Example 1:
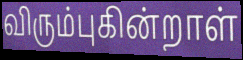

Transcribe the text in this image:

விரும்புகின்றாள்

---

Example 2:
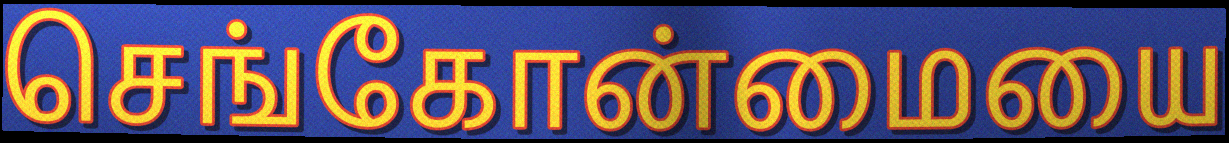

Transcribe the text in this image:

செங்கோன்மையை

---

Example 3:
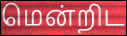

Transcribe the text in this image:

மென்றிட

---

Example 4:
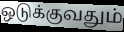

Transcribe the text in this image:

ஒடுக்குவதும்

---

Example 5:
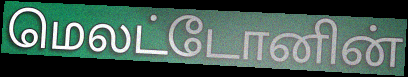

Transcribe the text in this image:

மெலட்டோனின்